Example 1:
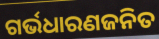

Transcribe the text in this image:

ଗର୍ଭଧାରଣଜନିତ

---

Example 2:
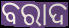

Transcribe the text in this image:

ବରାଦ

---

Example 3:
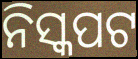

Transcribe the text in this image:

ନିସ୍କପଟ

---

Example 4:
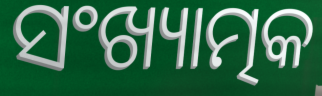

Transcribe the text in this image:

ସଂଖ୍ୟାତ୍ମକ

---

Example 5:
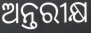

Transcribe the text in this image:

ଅନ୍ତରୀକ୍ଷ